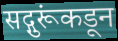
सद्गुरूंकडून